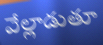
వేల్లాడుతూ